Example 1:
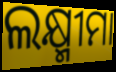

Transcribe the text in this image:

ଲକ୍ଷ୍ମୀମା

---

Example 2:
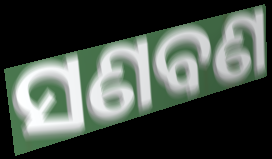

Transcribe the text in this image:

ସଣବଣ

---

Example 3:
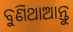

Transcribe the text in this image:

ବୁଣିଥାଆନ୍ତୁ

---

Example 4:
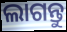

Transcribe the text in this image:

ଲାଗନ୍ତୁ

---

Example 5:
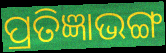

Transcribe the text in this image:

ପ୍ରତିଜ୍ଞାଭଙ୍ଗ